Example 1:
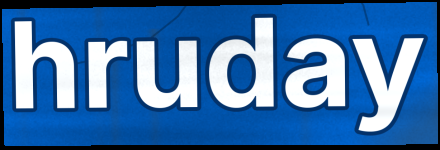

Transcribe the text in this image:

hruday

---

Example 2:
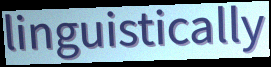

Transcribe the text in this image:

linguistically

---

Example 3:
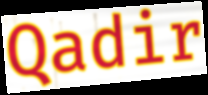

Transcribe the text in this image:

Qadir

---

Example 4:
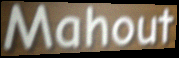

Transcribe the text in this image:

Mahout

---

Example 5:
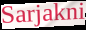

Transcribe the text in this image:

Sarjakni